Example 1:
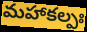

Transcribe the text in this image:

మహాకల్పః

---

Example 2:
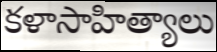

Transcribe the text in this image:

కళాసాహిత్యాలు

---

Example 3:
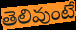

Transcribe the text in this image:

తెలివుంటే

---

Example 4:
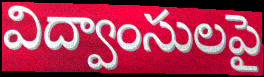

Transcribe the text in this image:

విద్వాంసులపై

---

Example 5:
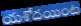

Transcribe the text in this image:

యశోదయింట